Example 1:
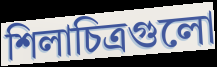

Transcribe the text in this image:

শিলাচিত্রগুলো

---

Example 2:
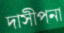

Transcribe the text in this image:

দাসীপনা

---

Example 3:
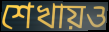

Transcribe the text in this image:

শেখায়ও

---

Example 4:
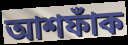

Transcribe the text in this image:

আশফাঁক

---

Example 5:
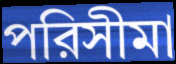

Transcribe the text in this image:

পরিসীমা